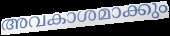
അവകാശമാക്കും